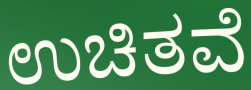
ಉಚಿತವೆ